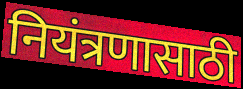
नियंत्रणासाठी